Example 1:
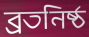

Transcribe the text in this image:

ব্রতনিষ্ঠ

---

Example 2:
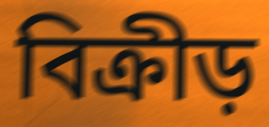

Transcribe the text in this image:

বিক্রীড়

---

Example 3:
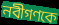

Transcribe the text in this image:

নবীগণকে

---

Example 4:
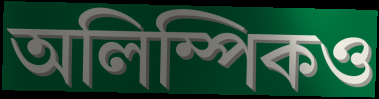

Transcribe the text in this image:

অলিম্পিকও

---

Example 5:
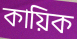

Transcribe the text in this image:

কায়িক